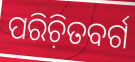
ପରିଚ଼ିତବର୍ଗ